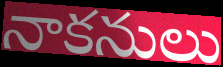
నాకనులు